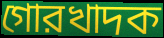
গোরখাদক